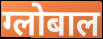
ग्लोबाल